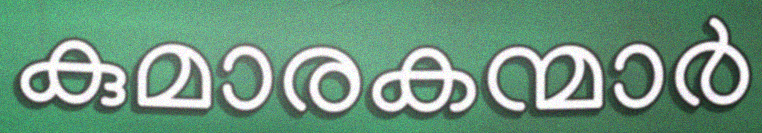
കുമാരകന്മാർ